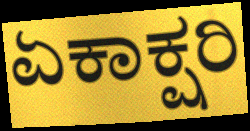
ಏಕಾಕ್ಷರಿ